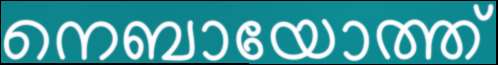
നെബായോത്ത്